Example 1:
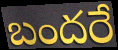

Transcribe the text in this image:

బందరే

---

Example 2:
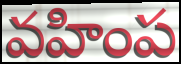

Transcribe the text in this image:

వహింప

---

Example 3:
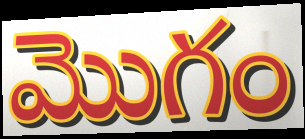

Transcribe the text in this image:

మొగం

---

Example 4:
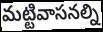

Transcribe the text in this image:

మట్టివాసనల్ని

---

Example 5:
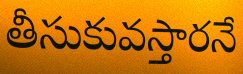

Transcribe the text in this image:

తీసుకువస్తారనే